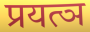
प्रयत्ञ